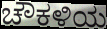
ಚೌಕಳಿಯ